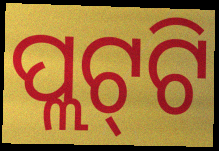
ପ୍ଲଟ୍‌ଟି